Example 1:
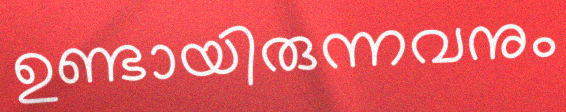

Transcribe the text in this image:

ഉണ്ടായിരുന്നവനും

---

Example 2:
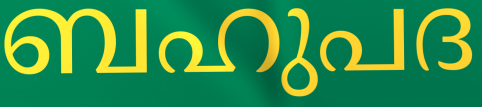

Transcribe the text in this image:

ബഹുപദ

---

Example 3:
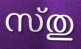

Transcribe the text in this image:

സ്‌തു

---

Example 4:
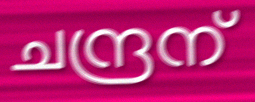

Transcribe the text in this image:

ചന്ദ്രന്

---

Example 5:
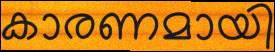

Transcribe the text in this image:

കാരണമായി